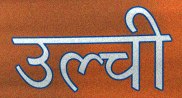
उल्ची